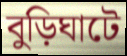
বুড়িঘাটে